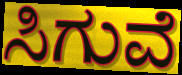
ಸಿಗುವೆ